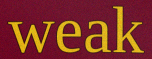
weak